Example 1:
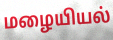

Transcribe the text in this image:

மழையியல்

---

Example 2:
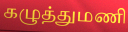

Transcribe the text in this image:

கழுத்துமணி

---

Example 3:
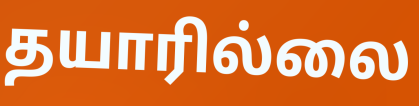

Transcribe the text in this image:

தயாரில்லை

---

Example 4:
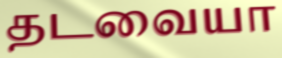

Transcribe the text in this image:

தடவையா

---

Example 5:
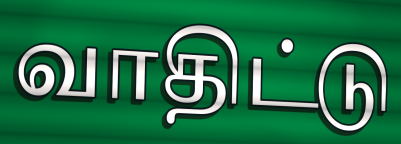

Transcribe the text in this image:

வாதிட்டு